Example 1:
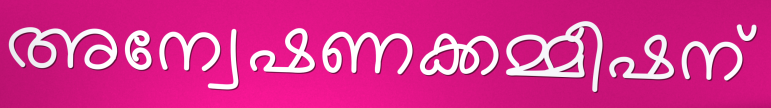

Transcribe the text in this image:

അന്വേഷണക്കമ്മീഷന്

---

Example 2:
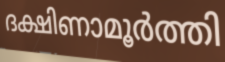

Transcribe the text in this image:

ദക്ഷിണാമൂർത്തി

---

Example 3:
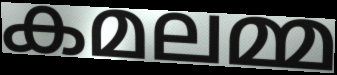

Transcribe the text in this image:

കമലമ്മ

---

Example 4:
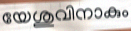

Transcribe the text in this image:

യേശുവിനാകും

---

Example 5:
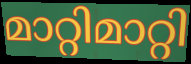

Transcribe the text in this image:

മാറ്റിമാറ്റി